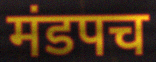
मंडपच